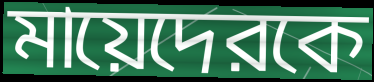
মায়েদেরকে